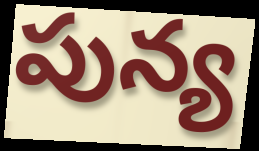
పున్య